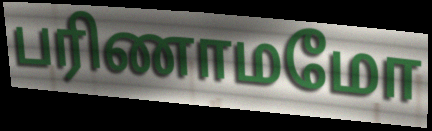
பரிணாமமோ